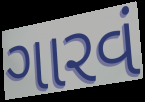
ગારવં